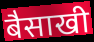
बैसाखी